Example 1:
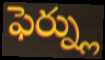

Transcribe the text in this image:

ఫెర్న్లు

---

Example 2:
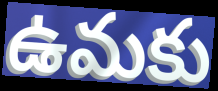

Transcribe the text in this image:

ఉమకు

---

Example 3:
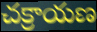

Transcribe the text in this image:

చక్రాయణ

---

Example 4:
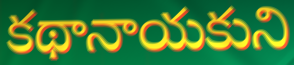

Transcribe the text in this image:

కథానాయకుని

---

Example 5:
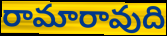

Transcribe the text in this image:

రామారావుది